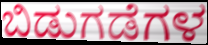
ಬಿಡುಗಡೆಗಳ